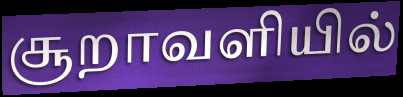
சூறாவளியில்